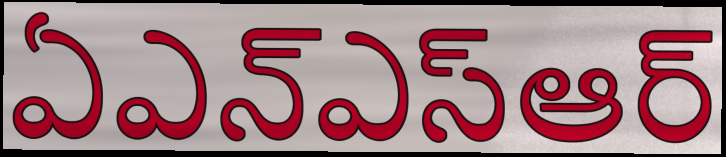
ఏఎన్ఎస్ఆర్